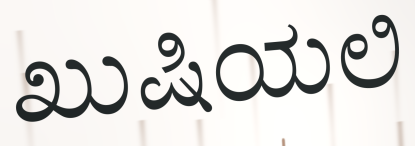
ಖುಷಿಯಲಿ